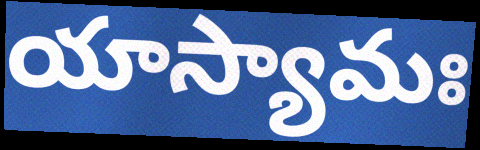
యాస్యామః